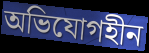
অভিযোগহীন